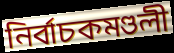
নির্বাচকমণ্ডলী